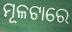
ମୂଳଟାରେ